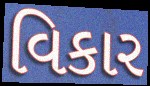
વિકાર